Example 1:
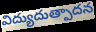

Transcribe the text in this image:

విద్యుదుత్పాదన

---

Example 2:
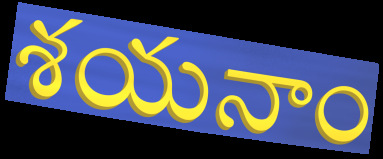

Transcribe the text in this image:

శయనాం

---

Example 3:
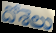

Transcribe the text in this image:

దోశెలు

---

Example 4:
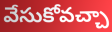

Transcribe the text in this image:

వేసుకోవచ్చా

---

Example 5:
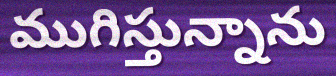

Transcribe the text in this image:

ముగిస్తున్నాను